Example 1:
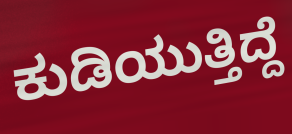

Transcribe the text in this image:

ಕುಡಿಯುತ್ತಿದ್ದೆ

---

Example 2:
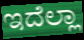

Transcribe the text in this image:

ಇದೆಲ್ಲಾ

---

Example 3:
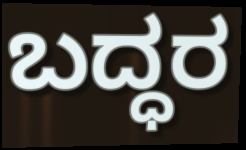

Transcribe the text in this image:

ಬದ್ಧರ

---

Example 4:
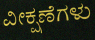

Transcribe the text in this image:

ವೀಕ್ಷಣೆಗಳು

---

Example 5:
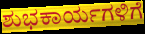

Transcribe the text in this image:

ಶುಭಕಾರ್ಯಗಳಿಗೆ